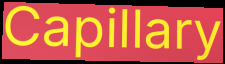
Capillary